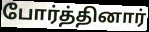
போர்த்தினார்